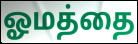
ஓமத்தை